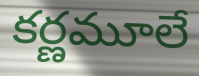
కర్ణమూలే